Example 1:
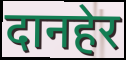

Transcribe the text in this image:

दानहेर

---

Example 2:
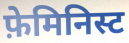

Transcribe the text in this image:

फ़ेमिनिस्ट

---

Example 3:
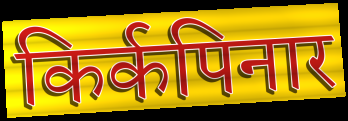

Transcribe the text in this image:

किर्कपिनार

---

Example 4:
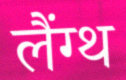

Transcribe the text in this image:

लैंग्थ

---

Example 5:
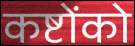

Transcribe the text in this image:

कष्टोंको